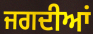
ਜਗਦੀਆਂ